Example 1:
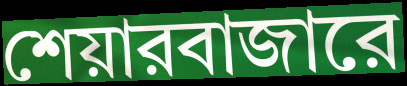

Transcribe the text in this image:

শেয়ারবাজারে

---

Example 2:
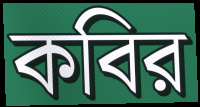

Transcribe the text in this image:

কবির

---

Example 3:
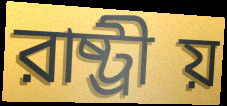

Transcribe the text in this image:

রাষ্ট্রীয়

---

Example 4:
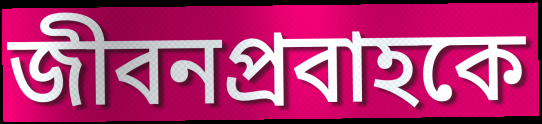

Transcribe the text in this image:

জীবনপ্রবাহকে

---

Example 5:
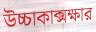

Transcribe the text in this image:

উচ্চাকাক্সক্ষার